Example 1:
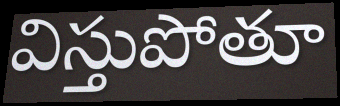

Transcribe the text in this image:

విస్తుపోతూ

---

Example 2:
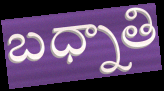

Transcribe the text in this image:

బధ్నాతి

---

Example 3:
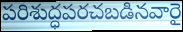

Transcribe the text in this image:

పరిశుద్ధపరచబడినవారై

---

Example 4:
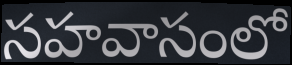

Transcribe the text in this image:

సహవాసంలో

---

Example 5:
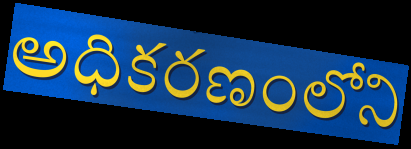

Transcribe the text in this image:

అధికరణంలోని